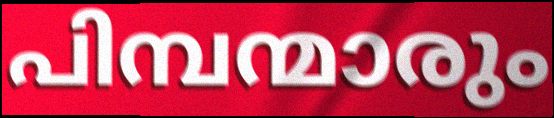
പിമ്പന്മാരും